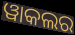
ୱାକଲର